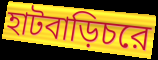
হাটবাড়িচরে